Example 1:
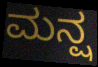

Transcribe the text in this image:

ಮನ್ಷ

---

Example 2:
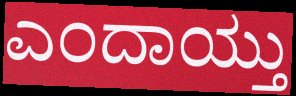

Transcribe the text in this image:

ಎಂದಾಯ್ತು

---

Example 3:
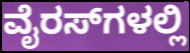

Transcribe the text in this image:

ವೈರಸ್‌ಗಳಲ್ಲಿ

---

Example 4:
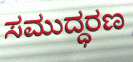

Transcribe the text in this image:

ಸಮುದ್ಧರಣ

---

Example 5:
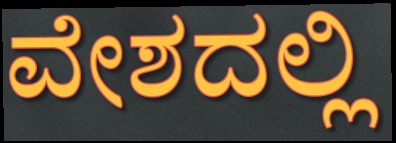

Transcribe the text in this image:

ವೇಶದಲ್ಲಿ